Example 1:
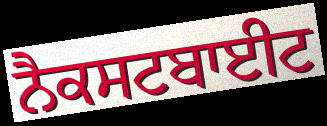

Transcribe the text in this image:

ਨੈਕਸਟਬਾਈਟ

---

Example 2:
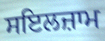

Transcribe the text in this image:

ਸਇਲਜ਼ਾਮ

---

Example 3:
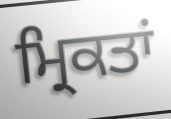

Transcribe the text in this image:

ਮ੍ਰਿਕਤਾਂ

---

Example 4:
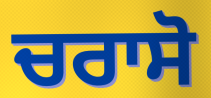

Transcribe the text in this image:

ਚਰਾਸੋ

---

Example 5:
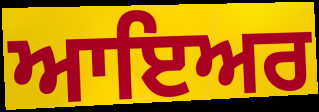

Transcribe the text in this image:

ਆਇਅਰ